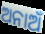
ଅନାଅଁ